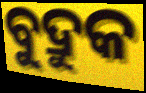
ବୁଦ୍ରୁକ